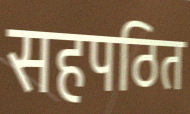
सहपठित